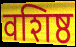
वशिष्ठ